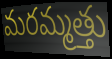
మరమ్మత్తు